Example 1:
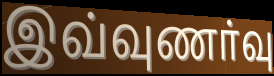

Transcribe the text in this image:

இவ்வுணர்வு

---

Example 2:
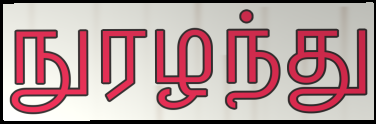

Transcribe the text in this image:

நுரழந்து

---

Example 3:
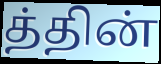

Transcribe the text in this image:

த்தின்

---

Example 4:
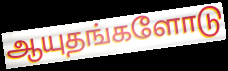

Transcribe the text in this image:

ஆயுதங்களோடு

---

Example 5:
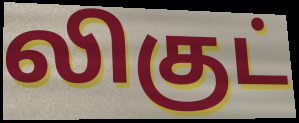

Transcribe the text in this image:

லிகுட்